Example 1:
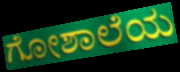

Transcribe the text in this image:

ಗೋಶಾಲೆಯ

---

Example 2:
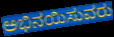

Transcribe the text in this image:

ಅಭಿನಯಿಸುವರು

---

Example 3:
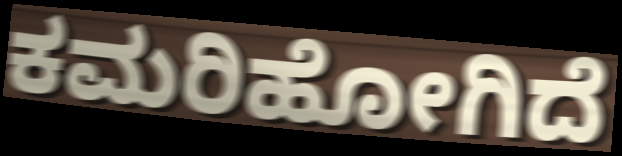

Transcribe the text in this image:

ಕಮರಿಹೋಗಿದೆ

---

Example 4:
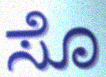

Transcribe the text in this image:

ಸೊ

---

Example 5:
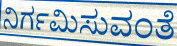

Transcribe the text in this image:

ನಿರ್ಗಮಿಸುವಂತೆ